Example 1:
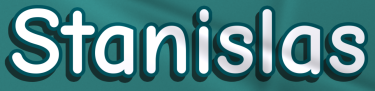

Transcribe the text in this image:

Stanislas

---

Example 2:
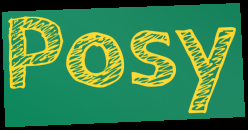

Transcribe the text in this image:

Posy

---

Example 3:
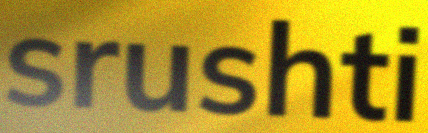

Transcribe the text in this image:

srushti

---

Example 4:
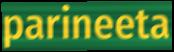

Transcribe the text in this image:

parineeta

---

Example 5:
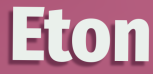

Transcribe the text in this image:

Eton